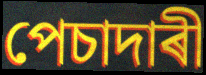
পেচাদাৰী